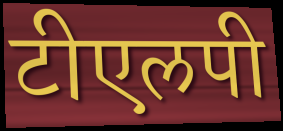
टीएलपी